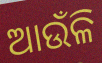
ଆଉଁଳି